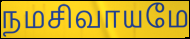
நமசிவாயமே